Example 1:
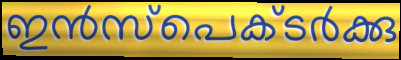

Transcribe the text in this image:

ഇൻസ്പെക്ടർക്കു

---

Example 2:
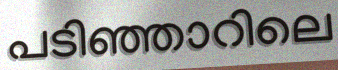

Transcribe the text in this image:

പടിഞ്ഞാറിലെ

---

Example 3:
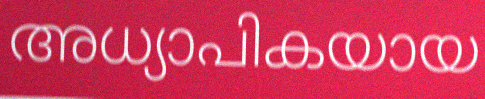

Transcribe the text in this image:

അധ്യാപികയായ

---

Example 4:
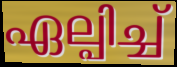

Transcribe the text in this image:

ഏല്പിച്ച്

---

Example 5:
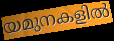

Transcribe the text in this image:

യമുനകളിൽ